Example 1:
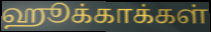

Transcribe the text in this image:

ஹூக்காக்கள்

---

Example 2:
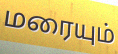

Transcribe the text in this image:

மரையும்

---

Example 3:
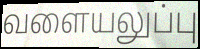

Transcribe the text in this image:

வளையலுப்பு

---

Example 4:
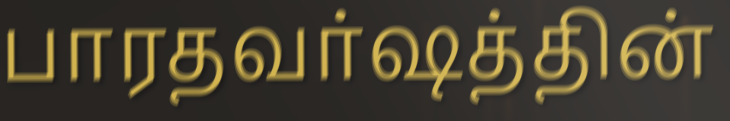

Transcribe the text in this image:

பாரதவர்ஷத்தின்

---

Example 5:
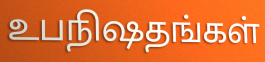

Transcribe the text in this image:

உபநிஷதங்கள்